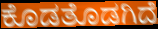
ಕೊಡತೊಡಗಿದೆ